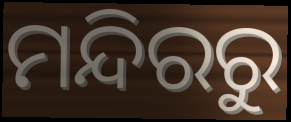
ମନ୍ଦିରରୁ